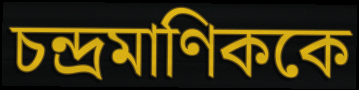
চন্দ্রমাণিককে